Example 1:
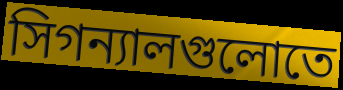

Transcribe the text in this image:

সিগন্যালগুলোতে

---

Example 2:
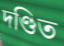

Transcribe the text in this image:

দণ্ডিত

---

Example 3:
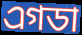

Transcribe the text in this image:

এগডা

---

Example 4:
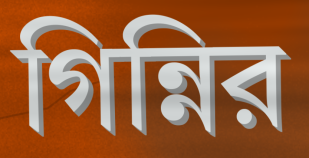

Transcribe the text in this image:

গিন্নির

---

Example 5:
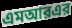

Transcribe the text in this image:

এমআরএর